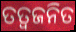
ତତ୍ଵଜନିତ